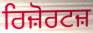
ਰਿਜ਼ੋਰਟਜ਼